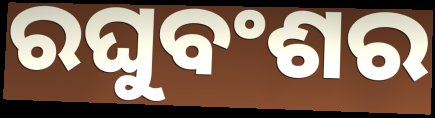
ରଘୁବଂଶର